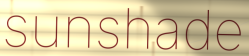
sunshade